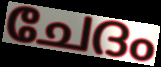
ചേദം